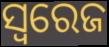
ସ୍ବରେଜ